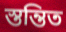
স্তন্তিত